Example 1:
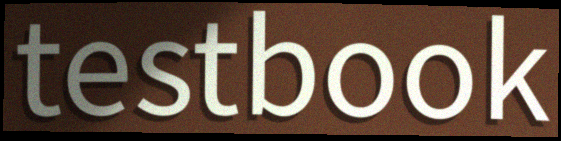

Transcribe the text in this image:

testbook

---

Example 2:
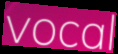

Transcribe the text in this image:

vocal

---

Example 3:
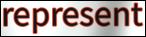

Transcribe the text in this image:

represent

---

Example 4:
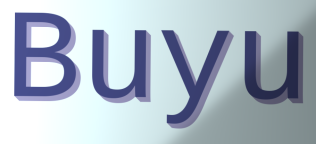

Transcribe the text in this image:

Buyu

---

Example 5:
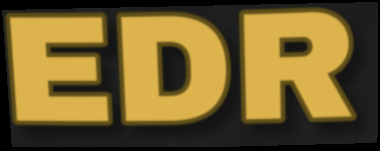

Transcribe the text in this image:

EDR